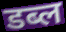
डब्ल